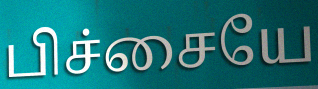
பிச்சையே